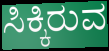
ಸಿಕ್ಕಿರುವ